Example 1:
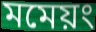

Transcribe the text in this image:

মমেয়ং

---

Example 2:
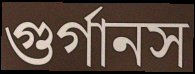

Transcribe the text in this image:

গুর্গানস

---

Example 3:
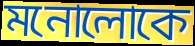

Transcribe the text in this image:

মনোলোকে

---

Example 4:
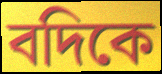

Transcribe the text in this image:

বদিকে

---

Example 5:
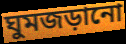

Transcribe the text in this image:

ঘুমজড়ানো